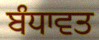
ਬੰਧਾਵਤ